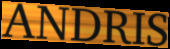
ANDRIS